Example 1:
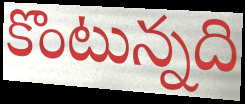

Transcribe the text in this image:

కొంటున్నది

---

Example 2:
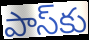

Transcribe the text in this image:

పాస్‌కు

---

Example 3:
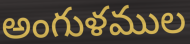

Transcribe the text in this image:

అంగుళముల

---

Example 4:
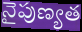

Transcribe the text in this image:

నైపుణ్యత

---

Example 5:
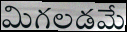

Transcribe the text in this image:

మిగలడమే